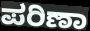
ಪರಿಣಾ